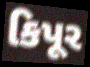
કિપૂર